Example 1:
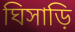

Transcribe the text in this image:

ঘিসাড়ি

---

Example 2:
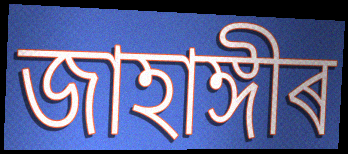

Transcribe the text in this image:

জাহাঙ্গীৰ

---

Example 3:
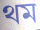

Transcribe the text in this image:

থম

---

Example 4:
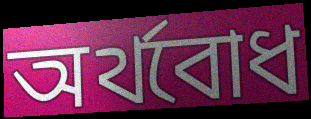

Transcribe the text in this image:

অৰ্থবোধ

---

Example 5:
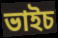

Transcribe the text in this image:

ভাইচ